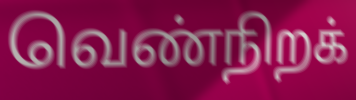
வெண்நிறக்